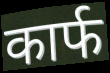
कार्फ